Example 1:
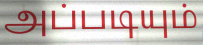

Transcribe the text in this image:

அப்படியும்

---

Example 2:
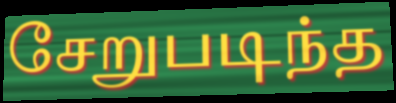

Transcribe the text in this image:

சேறுபடிந்த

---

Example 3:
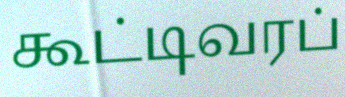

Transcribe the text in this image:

கூட்டிவரப்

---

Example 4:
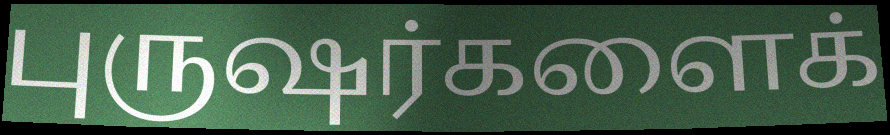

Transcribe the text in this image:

புருஷர்களைக்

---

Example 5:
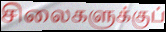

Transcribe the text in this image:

சிலைகளுக்குப்